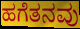
ಹಗೆತನವು